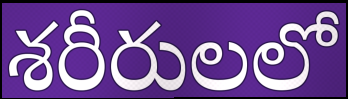
శరీరులలో